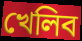
খেলিব